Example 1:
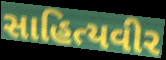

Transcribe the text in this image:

સાહિત્યવીર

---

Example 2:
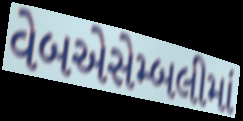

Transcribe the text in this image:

વેબએસેમ્બલીમાં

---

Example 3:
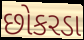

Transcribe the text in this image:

છોકરડા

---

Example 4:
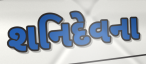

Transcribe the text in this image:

શનિદેવના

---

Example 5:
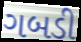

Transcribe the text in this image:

ગબડી